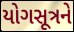
યોગસૂત્રને